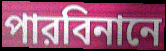
পারবিনানে